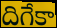
దిగేకా